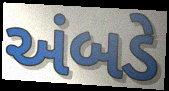
અંબડે